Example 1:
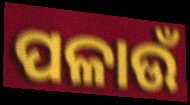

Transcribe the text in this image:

ପଳାଉଁ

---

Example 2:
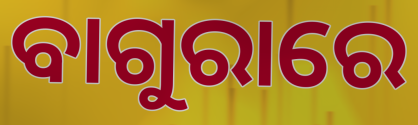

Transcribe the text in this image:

ବାଗୁରାରେ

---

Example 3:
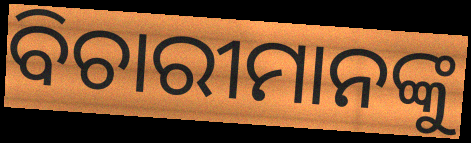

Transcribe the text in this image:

ବିଚାରୀମାନଙ୍କୁ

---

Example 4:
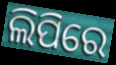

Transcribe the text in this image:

ଲିପିରେ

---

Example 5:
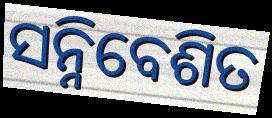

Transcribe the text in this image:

ସନ୍ନିବେଶିତ